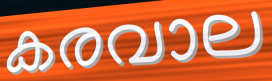
കരവാല